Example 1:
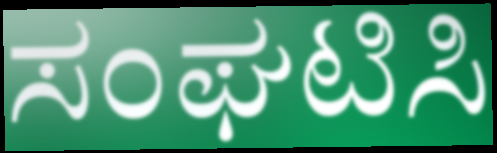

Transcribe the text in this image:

ಸಂಘಟಿಸಿ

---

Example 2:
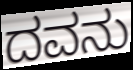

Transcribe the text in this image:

ದವನು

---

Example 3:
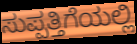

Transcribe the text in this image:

ಸುಪ್ಪತ್ತಿಗೆಯಲ್ಲಿ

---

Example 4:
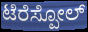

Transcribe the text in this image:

ಟೆರೆಸ್ಪೋಲ್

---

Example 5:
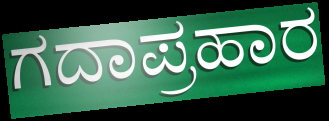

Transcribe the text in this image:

ಗದಾಪ್ರಹಾರ